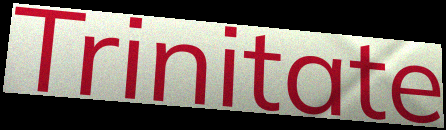
Trinitate